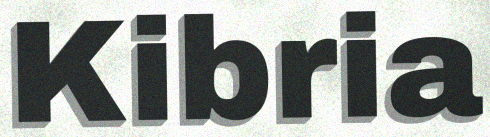
Kibria